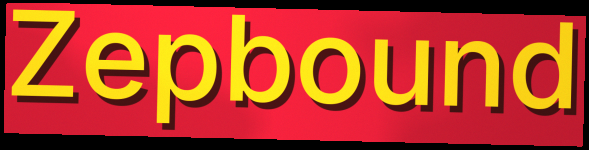
Zepbound